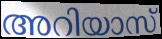
അറിയാസ്